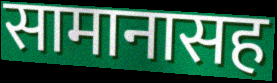
सामानासह